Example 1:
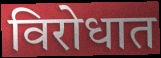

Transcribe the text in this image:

विरोधात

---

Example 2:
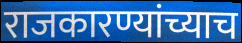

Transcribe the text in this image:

राजकारण्यांच्याच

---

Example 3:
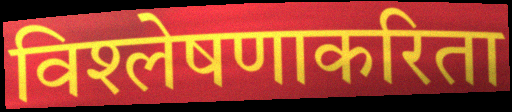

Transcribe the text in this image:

विश्लेषणाकरिता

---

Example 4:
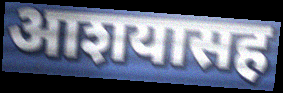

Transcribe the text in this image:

आशयासह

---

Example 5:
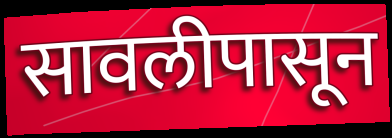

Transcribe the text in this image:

सावलीपासून